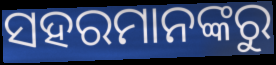
ସହରମାନଙ୍କରୁ